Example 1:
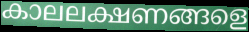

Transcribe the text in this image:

കാലലക്ഷണങ്ങളെ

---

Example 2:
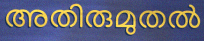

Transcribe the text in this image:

അതിരുമുതൽ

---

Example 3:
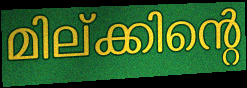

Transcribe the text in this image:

മില്ക്കിന്റെ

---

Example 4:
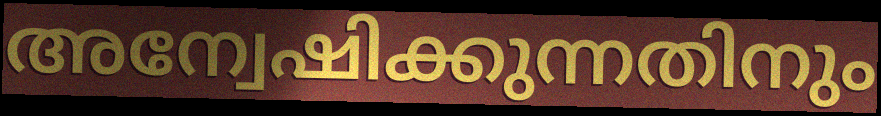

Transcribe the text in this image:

അന്വേഷിക്കുന്നതിനും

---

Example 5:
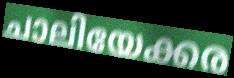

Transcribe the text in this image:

ചാലിയേക്കര